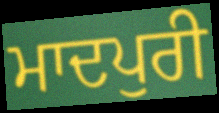
ਮਾਦਪੁਰੀ